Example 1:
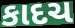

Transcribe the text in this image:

કાદચ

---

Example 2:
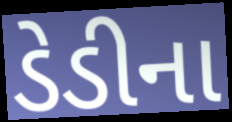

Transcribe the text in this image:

ડેડીના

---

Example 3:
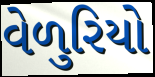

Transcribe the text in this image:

વેળુરિયો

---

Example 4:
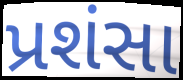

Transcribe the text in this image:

પ્રશંસા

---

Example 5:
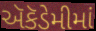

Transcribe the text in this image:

ઍકૅડેમીમાં